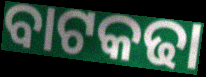
ବାଟକଢା